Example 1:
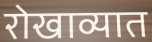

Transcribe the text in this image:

रोखाव्यात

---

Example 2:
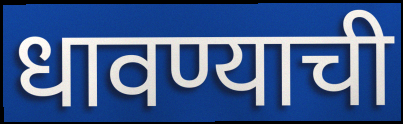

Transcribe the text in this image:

धावण्याची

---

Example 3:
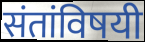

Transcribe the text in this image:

संतांविषयी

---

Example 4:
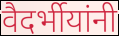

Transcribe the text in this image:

वैदर्भीयांनी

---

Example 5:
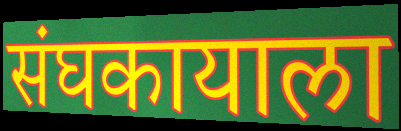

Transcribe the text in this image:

संघकायाला